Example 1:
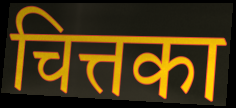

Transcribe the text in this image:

चित्तका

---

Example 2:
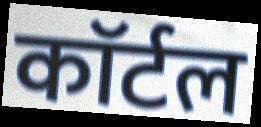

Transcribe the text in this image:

कॉर्टल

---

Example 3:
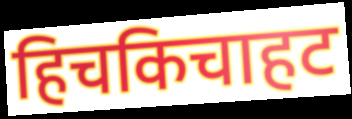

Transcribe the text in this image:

हिचकिचाहट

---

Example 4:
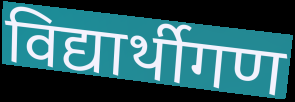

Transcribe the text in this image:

विद्यार्थीगण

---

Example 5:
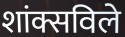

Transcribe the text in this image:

शांक्सविले